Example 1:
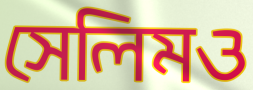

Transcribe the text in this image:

সেলিমও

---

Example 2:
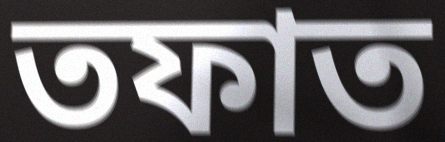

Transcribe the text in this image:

তফাত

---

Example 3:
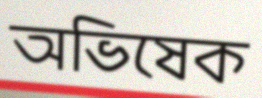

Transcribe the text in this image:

অভিষেক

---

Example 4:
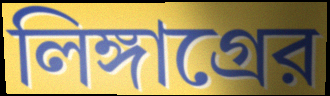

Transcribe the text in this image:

লিঙ্গাগ্রের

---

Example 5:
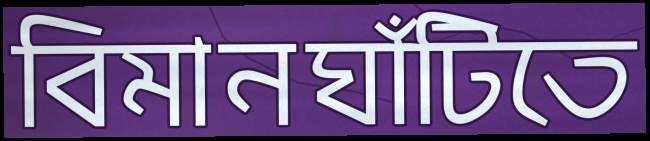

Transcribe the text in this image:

বিমানঘাঁটিতে